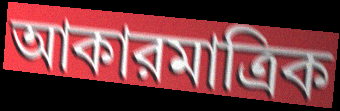
আকারমাত্রিক